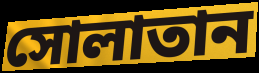
সোলাতান